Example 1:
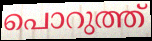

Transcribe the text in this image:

പൊറുത്ത്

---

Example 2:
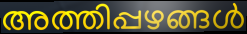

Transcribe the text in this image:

അത്തിപ്പഴങ്ങൾ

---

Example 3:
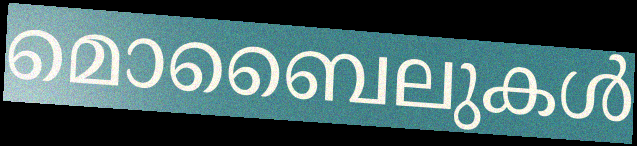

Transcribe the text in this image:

മൊബൈലുകൾ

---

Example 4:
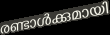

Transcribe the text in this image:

രണ്ടാൾക്കുമായി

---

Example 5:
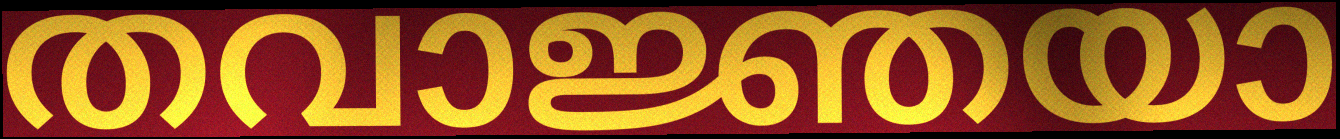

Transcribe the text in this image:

തവാജ്ഞയാ